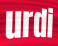
urdi